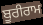
ਬੂਰੀਰਾਮ